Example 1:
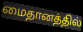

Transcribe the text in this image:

மைதானத்தில்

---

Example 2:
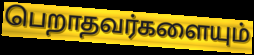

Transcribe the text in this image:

பெறாதவர்களையும்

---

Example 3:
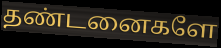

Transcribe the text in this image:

தண்டனைகளே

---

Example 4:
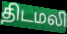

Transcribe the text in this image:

திடமலி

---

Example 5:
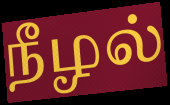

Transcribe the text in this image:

நீழல்